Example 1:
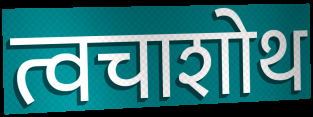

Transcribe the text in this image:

त्वचाशोथ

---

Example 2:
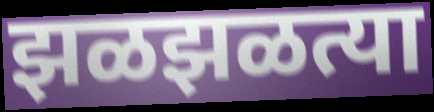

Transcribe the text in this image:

झळझळत्या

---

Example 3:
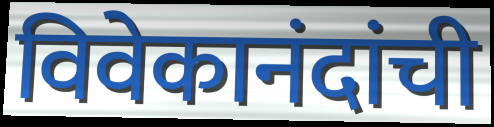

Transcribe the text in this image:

विवेकानंदांची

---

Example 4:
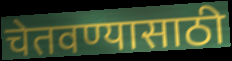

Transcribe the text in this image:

चेतवण्यासाठी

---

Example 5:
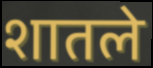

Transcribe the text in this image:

शातले